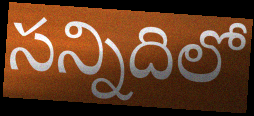
సన్నిదిలో